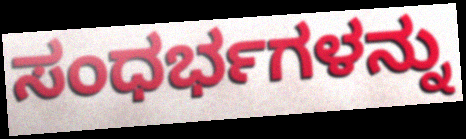
ಸಂಧರ್ಭಗಳನ್ನು